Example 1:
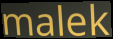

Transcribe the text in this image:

malek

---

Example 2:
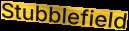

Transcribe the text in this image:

Stubblefield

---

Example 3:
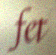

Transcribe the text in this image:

fet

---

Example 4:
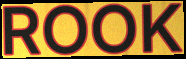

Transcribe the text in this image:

ROOK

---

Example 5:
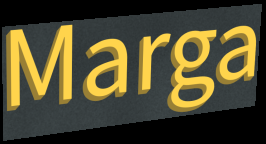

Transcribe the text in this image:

Marga